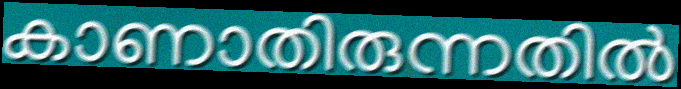
കാണാതിരുന്നതിൽ